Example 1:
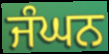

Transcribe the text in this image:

ਜੰਘਨ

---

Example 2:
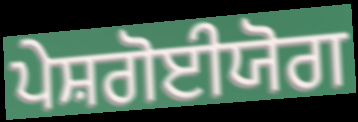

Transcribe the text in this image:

ਪੇਸ਼ਗੋਈਯੋਗ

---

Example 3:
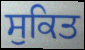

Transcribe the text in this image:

ਸੁਕਿਤ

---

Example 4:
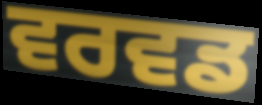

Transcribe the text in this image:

ਵਰਵਡ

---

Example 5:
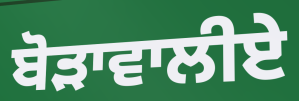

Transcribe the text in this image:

ਬੋੜਾਵਾਲੀਏ